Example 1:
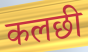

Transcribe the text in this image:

कलछी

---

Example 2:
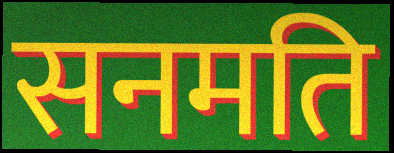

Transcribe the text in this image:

सनमति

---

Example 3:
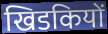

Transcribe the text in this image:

खिडकियों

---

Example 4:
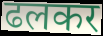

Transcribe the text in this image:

ढलकर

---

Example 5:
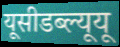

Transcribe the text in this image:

यूसीडब्ल्यूयू